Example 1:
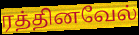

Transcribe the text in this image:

ரத்தினவேல்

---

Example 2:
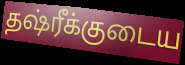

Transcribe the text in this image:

தஷ்ரீக்குடைய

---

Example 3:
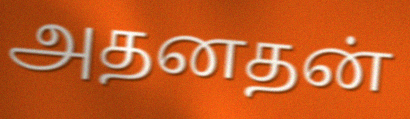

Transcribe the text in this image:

அதனதன்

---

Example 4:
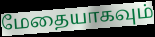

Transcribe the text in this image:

மேதையாகவும்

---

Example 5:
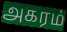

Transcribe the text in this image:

அகரம்